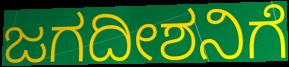
ಜಗದೀಶನಿಗೆ